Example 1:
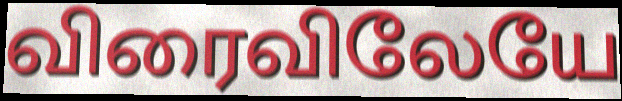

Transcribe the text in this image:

விரைவிலேயே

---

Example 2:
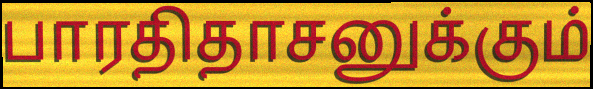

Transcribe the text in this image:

பாரதிதாசனுக்கும்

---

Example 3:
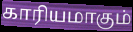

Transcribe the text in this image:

காரியமாகும்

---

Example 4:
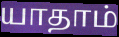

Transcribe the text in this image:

யாதாம்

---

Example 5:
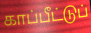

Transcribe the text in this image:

காப்பீட்டுப்